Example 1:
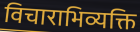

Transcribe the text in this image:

विचाराभिव्यक्ति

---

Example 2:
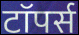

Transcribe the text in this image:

टॉपर्स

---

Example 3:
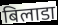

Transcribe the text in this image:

बिलाडा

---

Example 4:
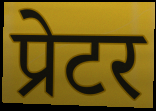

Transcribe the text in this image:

प्रेटर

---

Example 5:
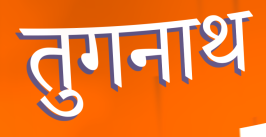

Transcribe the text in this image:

तुगनाथ